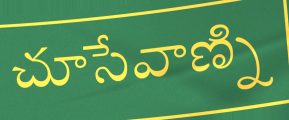
చూసేవాణ్ని